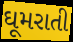
ઘૂમરાતી